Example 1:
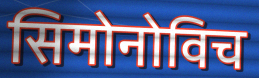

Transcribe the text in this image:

सिमोनोविच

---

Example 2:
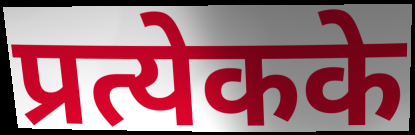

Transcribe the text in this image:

प्रत्येकके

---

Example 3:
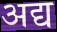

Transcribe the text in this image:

अद्य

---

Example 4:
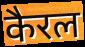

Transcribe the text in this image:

कैरल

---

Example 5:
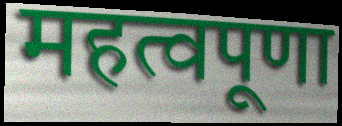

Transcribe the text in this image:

महत्वपूणा